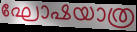
ഘോഷയാത്ര